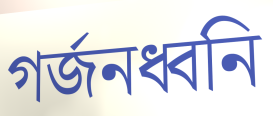
গর্জনধ্বনি